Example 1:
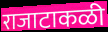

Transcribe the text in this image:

राजाटाकळी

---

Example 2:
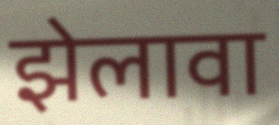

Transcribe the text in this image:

झेलावा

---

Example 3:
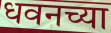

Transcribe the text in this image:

धवनच्या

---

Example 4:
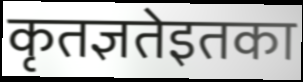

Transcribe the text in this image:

कृतज्ञतेइतका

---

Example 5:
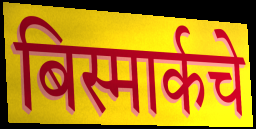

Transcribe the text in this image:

बिस्मार्कचे